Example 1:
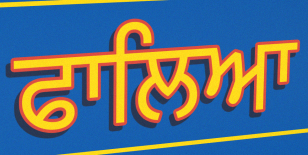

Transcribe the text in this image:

ਫਾਲਿਆ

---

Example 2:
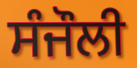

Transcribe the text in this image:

ਸੰਜੌਲੀ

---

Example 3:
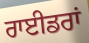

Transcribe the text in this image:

ਰਾਈਡਰਾਂ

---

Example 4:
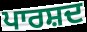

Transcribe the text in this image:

ਪਾਰਸ਼ਦ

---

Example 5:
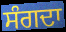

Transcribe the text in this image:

ਸੰਗਦਾ